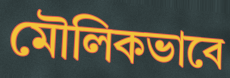
মৌলিকভাবে